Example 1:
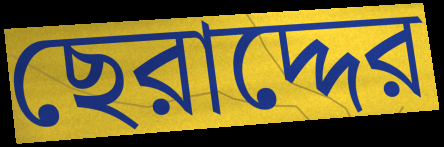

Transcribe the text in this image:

ছেরাদ্দের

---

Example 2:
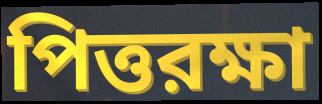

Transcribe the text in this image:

পিত্তরক্ষা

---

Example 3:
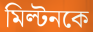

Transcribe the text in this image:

মিল্টনকে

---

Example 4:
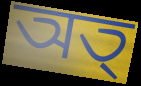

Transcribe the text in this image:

অত্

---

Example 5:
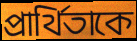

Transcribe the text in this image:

প্রার্থিতাকে